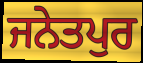
ਜਨੇਤਪੁਰ